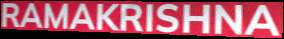
RAMAKRISHNA